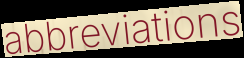
abbreviations